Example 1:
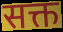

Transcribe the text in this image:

सक्त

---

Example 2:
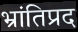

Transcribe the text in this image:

भ्रांतिप्रद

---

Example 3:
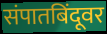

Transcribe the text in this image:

संपातबिंदूवर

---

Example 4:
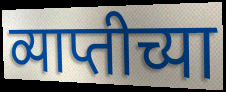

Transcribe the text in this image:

व्याप्तीच्या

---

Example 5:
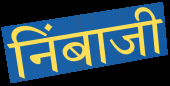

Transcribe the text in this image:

निंबाजी